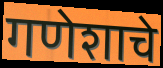
गणेशाचे